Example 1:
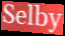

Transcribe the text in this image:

Selby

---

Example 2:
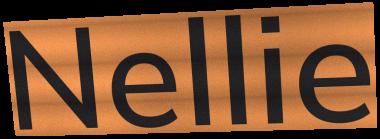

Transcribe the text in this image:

Nellie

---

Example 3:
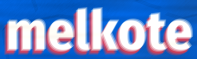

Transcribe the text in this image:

melkote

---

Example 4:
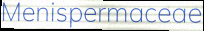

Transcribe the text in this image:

Menispermaceae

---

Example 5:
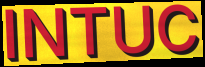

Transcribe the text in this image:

INTUC